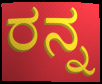
ರನ್ನ